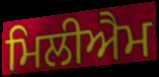
ਮਿਲੀਐਮ